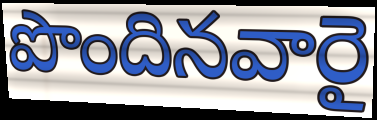
పొందినవారై